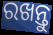
ରଖନ୍ତୁ